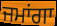
ਜਮਾਂਗਾ